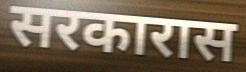
सरकारास